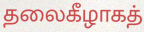
தலைகீழாகத்